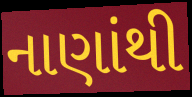
નાણાંથી